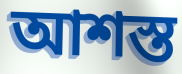
আশস্ত